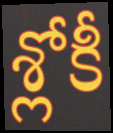
శ్లోకీ